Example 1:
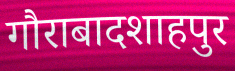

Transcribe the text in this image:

गौराबादशाहपुर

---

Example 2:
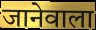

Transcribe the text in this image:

जानेवाला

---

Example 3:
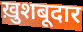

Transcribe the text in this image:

ख़ुशबूदार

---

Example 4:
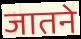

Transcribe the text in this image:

जातने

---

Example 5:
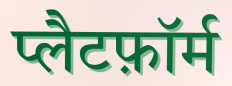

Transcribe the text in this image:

प्लैटफ़ॉर्म